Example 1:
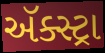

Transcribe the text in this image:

ઍક્સ્ટ્રા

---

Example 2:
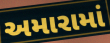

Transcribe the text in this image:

અમારામાં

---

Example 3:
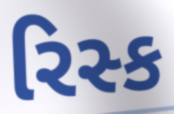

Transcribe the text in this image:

રિસ્ક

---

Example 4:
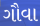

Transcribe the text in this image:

ગૌવા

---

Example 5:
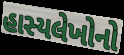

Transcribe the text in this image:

હાસ્યલેખોનો